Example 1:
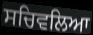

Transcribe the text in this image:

ਸਚਿਵਲਿਆ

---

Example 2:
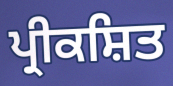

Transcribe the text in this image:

ਪ੍ਰੀਕਸ਼ਿਤ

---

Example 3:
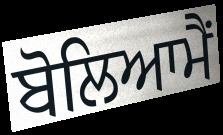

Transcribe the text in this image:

ਬੋਲਿਆਮੈਂ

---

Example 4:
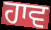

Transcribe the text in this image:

ਹਾਵ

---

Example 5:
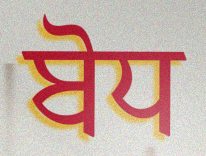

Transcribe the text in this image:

ਬੋਧ